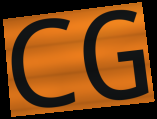
CG